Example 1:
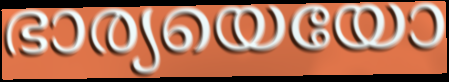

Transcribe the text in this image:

ഭാര്യയെയോ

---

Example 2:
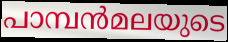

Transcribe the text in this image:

പാമ്പൻമലയുടെ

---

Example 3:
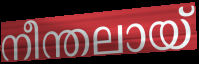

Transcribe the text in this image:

നീന്തലായ്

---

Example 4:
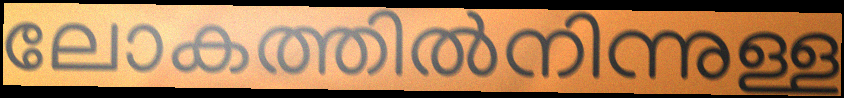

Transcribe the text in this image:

ലോകത്തിൽനിന്നുള്ള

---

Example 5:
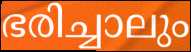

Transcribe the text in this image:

ഭരിച്ചാലും